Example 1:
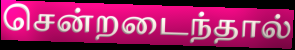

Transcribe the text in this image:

சென்றடைந்தால்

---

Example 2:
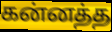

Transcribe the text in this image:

கன்னத்த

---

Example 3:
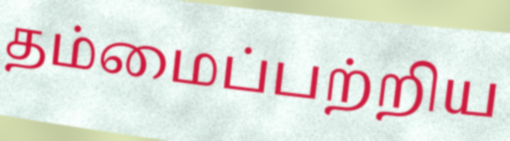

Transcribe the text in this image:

தம்மைப்பற்றிய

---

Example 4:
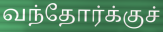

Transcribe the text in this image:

வந்தோர்க்குச்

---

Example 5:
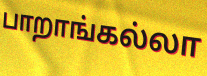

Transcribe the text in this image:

பாறாங்கல்லா